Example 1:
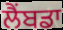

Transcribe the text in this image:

ਲੈਂਬਡਾ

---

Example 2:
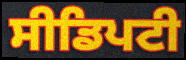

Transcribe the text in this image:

ਸੀਡਿਪਟੀ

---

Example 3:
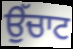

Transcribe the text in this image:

ਉੱਚਾਟ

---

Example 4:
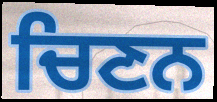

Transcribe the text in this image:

ਚਿਣਨ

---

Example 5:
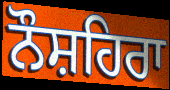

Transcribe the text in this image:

ਨੌਸ਼ਹਿਰਾ